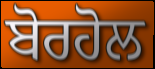
ਬੋਰਹੋਲ